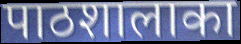
पाठशालाका